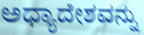
ಅಧ್ಯಾದೇಶವನ್ನು